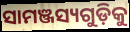
ସାମଞ୍ଜସ୍ୟଗୁଡ଼ିକୁ